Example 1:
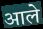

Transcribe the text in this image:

आले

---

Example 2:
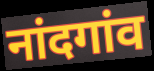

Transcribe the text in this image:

नांदगांव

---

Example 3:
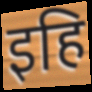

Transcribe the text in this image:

इहि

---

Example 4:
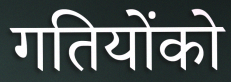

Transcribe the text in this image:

गतियोंको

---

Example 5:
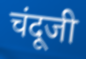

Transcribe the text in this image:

चंदूजी